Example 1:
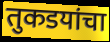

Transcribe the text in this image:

तुकडयांचा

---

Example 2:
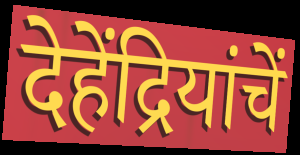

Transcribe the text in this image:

देहेंद्रियांचें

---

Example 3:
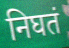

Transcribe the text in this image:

निघतं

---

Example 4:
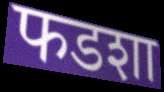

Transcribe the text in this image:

फडशा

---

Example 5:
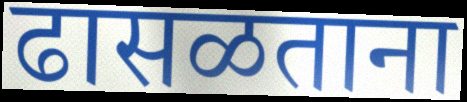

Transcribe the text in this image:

ढासळताना